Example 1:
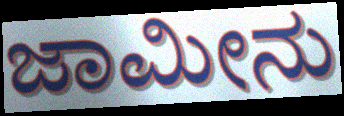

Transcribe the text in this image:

ಜಾಮೀನು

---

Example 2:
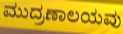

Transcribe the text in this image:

ಮುದ್ರಣಾಲಯವು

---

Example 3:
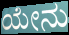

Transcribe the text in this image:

ಯೇನು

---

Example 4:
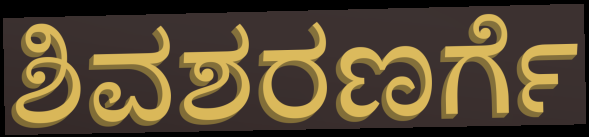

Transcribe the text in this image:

ಶಿವಶರಣರ್ಗೆ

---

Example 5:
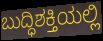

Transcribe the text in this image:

ಬುದ್ಧಿಶಕ್ತಿಯಲ್ಲಿ